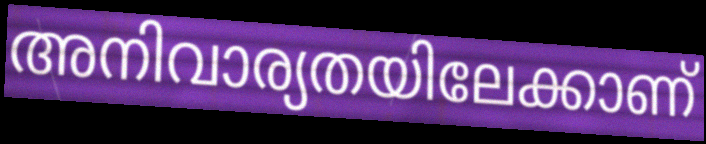
അനിവാര്യതയിലേക്കാണ്